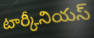
టార్కీనియస్